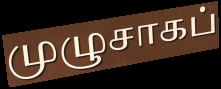
முழுசாகப்